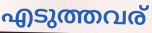
എടുത്തവര്